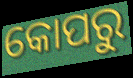
କୋପରୁ